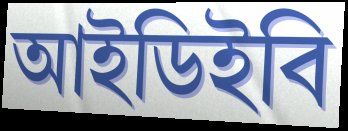
আইডিইবি